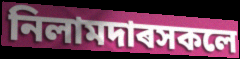
নিলামদাৰসকলে